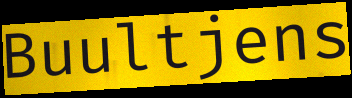
Buultjens